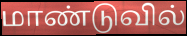
மாண்டுவில்